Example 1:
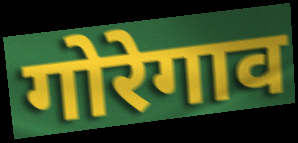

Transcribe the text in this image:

गोरेगाव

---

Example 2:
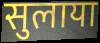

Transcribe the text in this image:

सुलाया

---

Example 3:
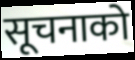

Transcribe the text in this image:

सूचनाको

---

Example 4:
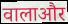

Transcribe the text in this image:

वालाऔर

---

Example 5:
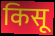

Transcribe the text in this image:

किसू